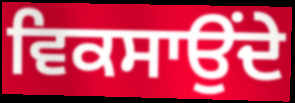
ਵਿਕਸਾਉਂਦੇ